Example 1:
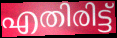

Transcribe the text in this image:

എതിരിട്ട്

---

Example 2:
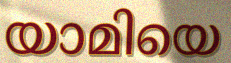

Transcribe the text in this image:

യാമിയെ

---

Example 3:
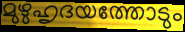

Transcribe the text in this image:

മുഴുഹൃദയത്തോടും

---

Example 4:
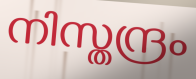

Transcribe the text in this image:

നിസ്തന്ദ്രം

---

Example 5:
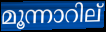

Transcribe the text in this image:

മൂന്നാറില്